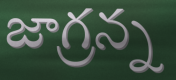
జాగ్రన్న